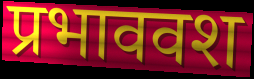
प्रभाववश